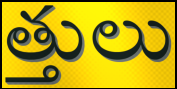
త్తులు